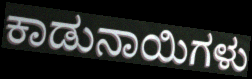
ಕಾಡುನಾಯಿಗಳು